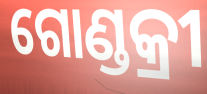
ଗୋଣ୍ଡକ୍ରୀ